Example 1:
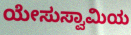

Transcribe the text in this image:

ಯೇಸುಸ್ವಾಮಿಯ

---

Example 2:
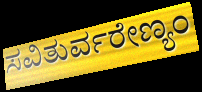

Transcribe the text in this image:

ಸವಿತುರ್ವರೇಣ್ಯಂ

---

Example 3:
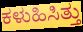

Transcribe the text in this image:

ಕಳುಹಿಸಿತ್ತು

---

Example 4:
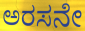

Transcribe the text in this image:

ಅರಸನೇ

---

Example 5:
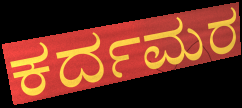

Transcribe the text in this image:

ಕರ್ದಮರ